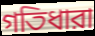
গতিধারা